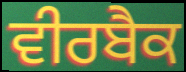
ਵੀਰਬੈਕ